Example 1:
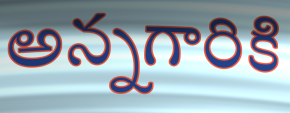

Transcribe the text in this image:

అన్నగారికి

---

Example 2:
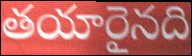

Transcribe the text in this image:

తయారైనది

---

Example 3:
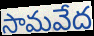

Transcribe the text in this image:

సామవేద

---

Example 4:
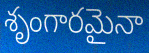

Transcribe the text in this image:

శృంగారమైనా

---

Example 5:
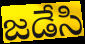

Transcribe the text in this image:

జడేసి